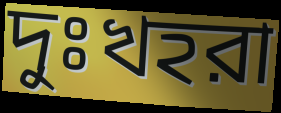
দুঃখহরা